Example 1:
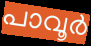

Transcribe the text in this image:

പാവൂർ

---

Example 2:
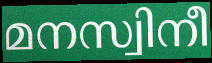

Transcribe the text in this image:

മനസ്വിനീ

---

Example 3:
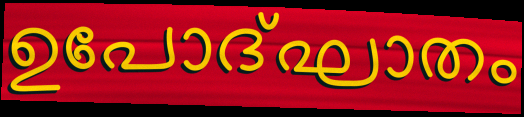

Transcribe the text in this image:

ഉപോദ്ഘാതം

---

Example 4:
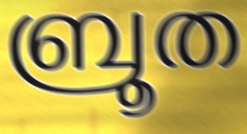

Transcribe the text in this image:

ബ്രൂത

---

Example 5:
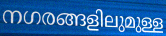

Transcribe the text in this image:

നഗരങ്ങളിലുമുള്ള